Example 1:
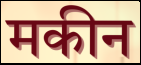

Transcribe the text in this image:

मकीन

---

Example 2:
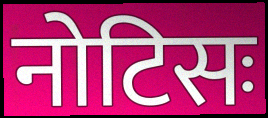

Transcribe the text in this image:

नोटिसः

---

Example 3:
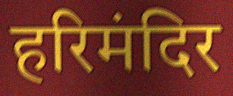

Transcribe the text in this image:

हरिमंदिर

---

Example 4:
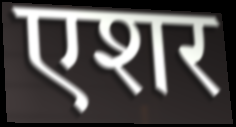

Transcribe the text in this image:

एशर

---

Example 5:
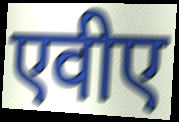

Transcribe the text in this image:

एवीए